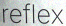
reflex